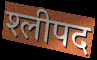
श्लीपद